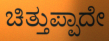
ಚಿತ್ತುಪ್ಪಾದೇ